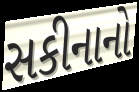
સકીનાનો